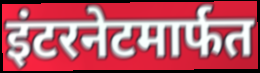
इंटरनेटमार्फत